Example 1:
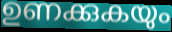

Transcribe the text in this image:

ഉണക്കുകയും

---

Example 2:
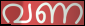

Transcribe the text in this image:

വണ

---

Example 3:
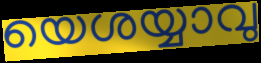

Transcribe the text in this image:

യെശയ്യാവു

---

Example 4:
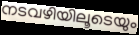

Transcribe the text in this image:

നടവഴിയിലൂടെയും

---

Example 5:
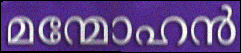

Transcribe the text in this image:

മന്മോഹൻ